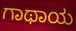
ಗಾಥಾಯ